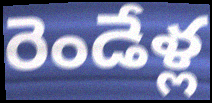
రెండేళ్ల